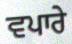
ਵਪਾਰੇ